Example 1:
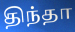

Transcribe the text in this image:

திந்தா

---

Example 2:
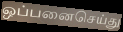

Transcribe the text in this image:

ஒப்பனைசெய்து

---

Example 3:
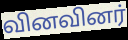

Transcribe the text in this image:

வினவினர்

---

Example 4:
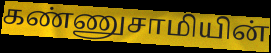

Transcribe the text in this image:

கண்ணுசாமியின்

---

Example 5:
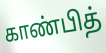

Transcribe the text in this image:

காண்பித்